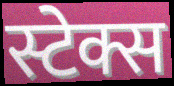
स्टेक्स